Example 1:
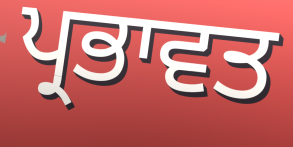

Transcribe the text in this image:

ਪ੍ਰਭਾਵਤ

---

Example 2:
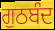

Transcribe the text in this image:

ਗੁਠਬੰਦ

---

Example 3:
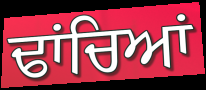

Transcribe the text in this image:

ਢਾਂਚਿਆਂ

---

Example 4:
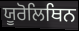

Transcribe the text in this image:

ਯੂਰੋਲਿਥਿਨ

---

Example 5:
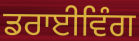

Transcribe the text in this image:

ਡਰਾਈਵਿੰਗ